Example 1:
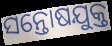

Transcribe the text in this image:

ସନ୍ତୋଷଯୁକ୍ତ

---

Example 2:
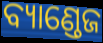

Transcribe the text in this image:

ବ୍ୟାଣ୍ଡେଜ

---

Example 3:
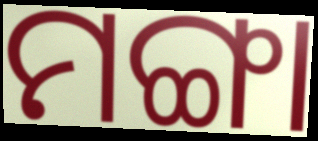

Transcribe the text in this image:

ମଙ୍ଗା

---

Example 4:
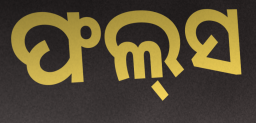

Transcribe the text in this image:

ଫଲ୍‍ସ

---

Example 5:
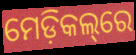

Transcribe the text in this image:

ମେଡ଼ିକଲ୍‌ରେ